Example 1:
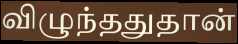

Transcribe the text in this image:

விழுந்ததுதான்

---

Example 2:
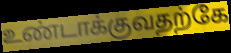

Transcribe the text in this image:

உண்டாக்குவதற்கே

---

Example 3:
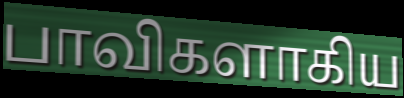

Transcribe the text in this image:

பாவிகளாகிய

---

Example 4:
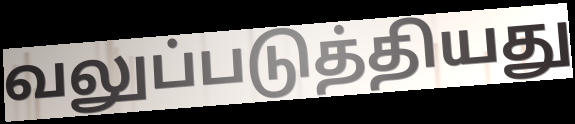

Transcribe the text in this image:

வலுப்படுத்தியது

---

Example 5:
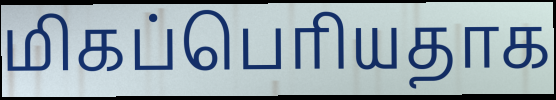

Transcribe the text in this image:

மிகப்பெரியதாக